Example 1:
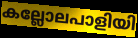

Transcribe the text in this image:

കല്ലോലപാളിയി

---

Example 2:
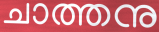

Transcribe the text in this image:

ചാത്തനു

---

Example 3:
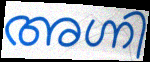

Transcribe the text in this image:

അഗ്നി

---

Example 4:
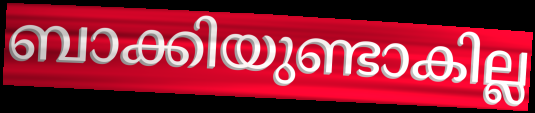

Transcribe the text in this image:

ബാക്കിയുണ്ടാകില്ല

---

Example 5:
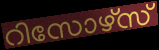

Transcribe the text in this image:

റിസോഴ്സ്